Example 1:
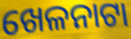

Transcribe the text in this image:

ଖେଳନାଟା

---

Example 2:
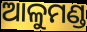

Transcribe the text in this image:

ଆଳୁମଣ୍ଡ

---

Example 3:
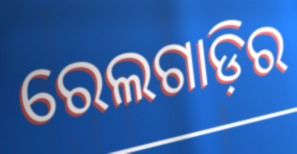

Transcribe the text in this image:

ରେଲଗାଡ଼ିର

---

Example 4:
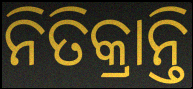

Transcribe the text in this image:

ନିତିକ୍ରାନ୍ତି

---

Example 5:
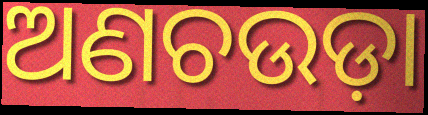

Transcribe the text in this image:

ଅଣଚଉଡ଼ା